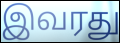
இவரது